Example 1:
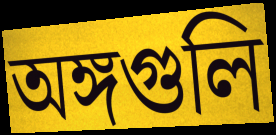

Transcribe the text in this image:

অঙ্গগুলি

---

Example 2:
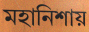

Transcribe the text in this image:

মহানিশায়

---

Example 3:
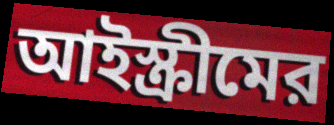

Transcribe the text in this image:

আইস্ক্রীমের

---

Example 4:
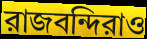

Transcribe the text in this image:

রাজবন্দিরাও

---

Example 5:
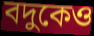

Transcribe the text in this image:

বদুকেও